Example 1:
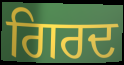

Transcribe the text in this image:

ਗਿਰਦ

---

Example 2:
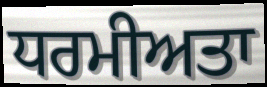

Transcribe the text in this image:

ਧਰਮੀਅਤਾ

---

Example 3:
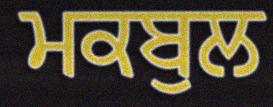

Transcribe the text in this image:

ਮਕਬੁਲ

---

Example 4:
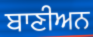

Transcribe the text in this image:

ਬਾਣੀਅਨ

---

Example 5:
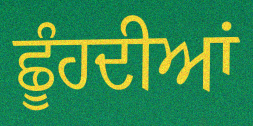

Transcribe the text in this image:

ਛੂੰਹਦੀਆਂ